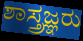
ಶಾಸ್ತ್ರಜ್ಞರು